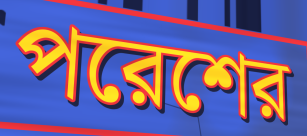
পরেশের